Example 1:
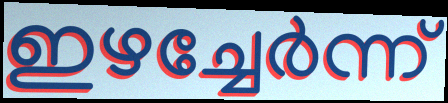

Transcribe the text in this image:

ഇഴച്ചേർന്ന്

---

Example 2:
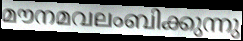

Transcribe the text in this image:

മൗനമവലംബിക്കുന്നു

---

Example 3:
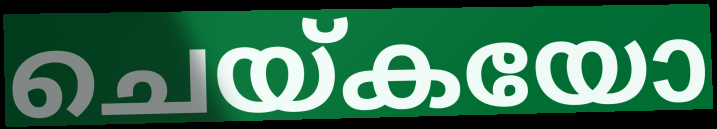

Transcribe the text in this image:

ചെയ്കയോ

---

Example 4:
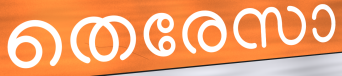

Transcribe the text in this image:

തെരേസാ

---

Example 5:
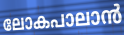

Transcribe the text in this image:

ലോകപാലാൻ